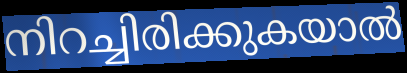
നിറച്ചിരിക്കുകയാൽ